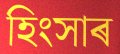
হিংসাৰ